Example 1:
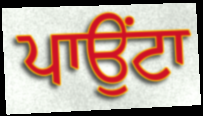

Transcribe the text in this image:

ਪਾਉਂਟਾ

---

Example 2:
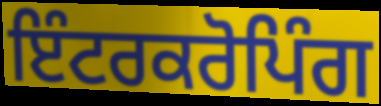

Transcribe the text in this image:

ਇੰਟਰਕਰੋਪਿੰਗ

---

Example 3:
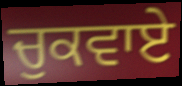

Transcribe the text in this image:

ਚੁਕਵਾਏ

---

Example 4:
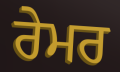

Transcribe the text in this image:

ਰੇਮਰ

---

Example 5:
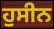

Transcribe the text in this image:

ਹੁਸੀਨ